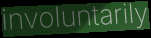
involuntarily